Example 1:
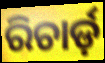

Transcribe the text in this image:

ରିଚାର୍ଡ଼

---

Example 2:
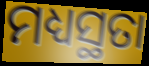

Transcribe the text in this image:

ମଧ୍ୟସ୍ଥତା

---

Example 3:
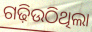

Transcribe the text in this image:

ଗଢ଼ିଉଠିଥିଲା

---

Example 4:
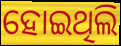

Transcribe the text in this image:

ହୋଇଥିଲି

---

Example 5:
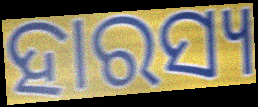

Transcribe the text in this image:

ହାରସ୍ୟ